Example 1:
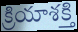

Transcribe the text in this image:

క్రియాశక్తి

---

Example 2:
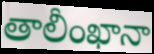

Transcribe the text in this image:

తాలీంఖానా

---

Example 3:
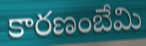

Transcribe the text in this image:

కారణంబేమి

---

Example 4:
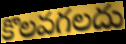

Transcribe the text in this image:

కొలవగలదు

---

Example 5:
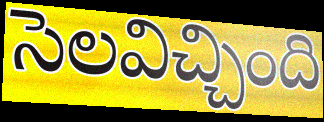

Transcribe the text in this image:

సెలవిచ్చింది